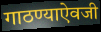
गाठण्याऐवजी